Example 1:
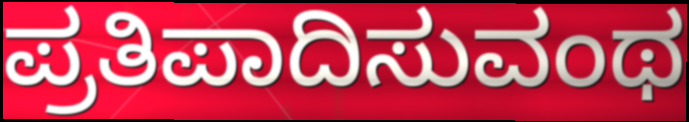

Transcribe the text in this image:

ಪ್ರತಿಪಾದಿಸುವಂಥ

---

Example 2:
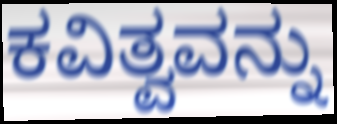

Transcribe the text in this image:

ಕವಿತ್ವವನ್ನು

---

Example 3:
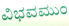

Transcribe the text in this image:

ವಿಭವಮುಂ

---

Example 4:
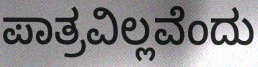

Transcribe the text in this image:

ಪಾತ್ರವಿಲ್ಲವೆಂದು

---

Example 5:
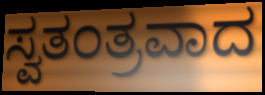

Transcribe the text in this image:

ಸ್ವತಂತ್ರವಾದ